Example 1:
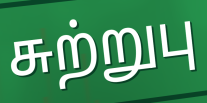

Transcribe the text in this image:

சுற்றுபு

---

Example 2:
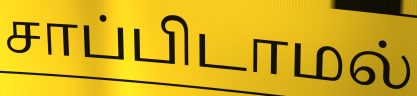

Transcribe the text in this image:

சாப்பிடாமல்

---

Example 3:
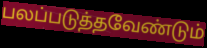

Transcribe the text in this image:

பலப்படுத்தவேண்டும்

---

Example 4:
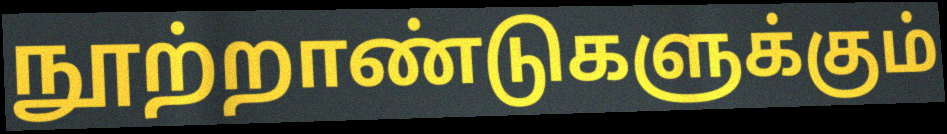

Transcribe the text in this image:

நூற்றாண்டுகளுக்கும்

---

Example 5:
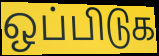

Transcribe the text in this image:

ஒப்பிடுக